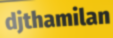
djthamilan